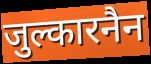
जुल्कारनैन